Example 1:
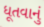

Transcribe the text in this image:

ધૂતવાનું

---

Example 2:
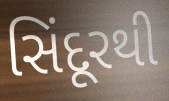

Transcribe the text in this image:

સિંદૂરથી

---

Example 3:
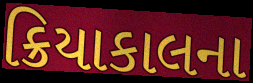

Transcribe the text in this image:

ક્રિયાકાલના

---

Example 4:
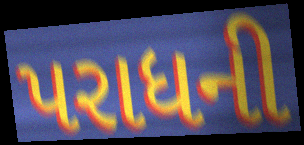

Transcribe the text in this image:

પરાધની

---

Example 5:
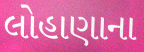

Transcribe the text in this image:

લોહાણાના